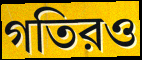
গতিরও